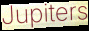
Jupiters